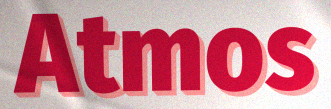
Atmos